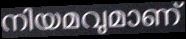
നിയമവുമാണ്